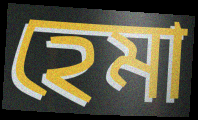
হেমা